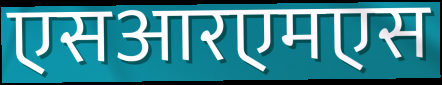
एसआरएमएस